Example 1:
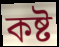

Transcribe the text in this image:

কষ্ট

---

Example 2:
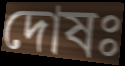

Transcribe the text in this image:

দোষঃ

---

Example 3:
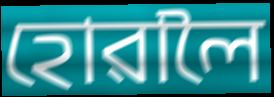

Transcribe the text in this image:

হোৱালৈ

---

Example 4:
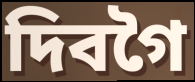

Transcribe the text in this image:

দিবগৈ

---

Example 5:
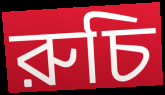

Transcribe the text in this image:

ৰুচি